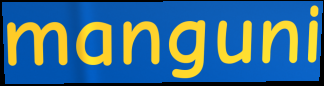
manguni